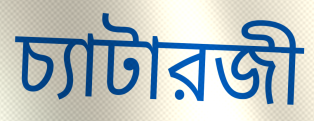
চ্যাটারজী